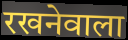
रखनेवाला